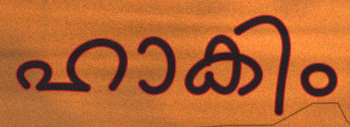
ഹാകിം